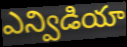
ఎన్విడియా